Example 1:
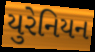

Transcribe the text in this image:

યુરેનિયન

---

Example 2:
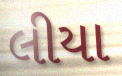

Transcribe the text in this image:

લીયા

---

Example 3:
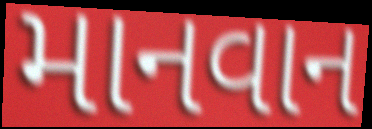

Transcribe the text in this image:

માનવાન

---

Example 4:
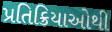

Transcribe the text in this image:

પ્રતિક્રિયાઓથી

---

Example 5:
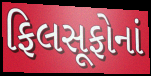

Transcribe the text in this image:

ફિલસૂફોનાં